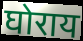
घोराय